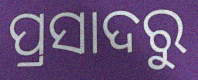
ପ୍ରସାଦରୁ